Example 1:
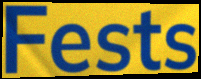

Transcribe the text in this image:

Fests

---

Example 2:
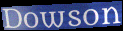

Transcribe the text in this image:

Dowson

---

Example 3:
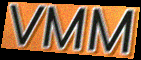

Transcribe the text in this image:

VMM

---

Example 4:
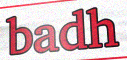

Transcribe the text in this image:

badh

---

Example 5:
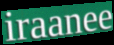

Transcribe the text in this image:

iraanee